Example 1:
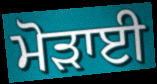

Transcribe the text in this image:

ਮੋੜਾਈ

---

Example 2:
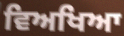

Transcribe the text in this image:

ਵਿਅਖਿਆ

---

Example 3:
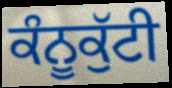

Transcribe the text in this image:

ਕੰਨੂਕੁੱਟੀ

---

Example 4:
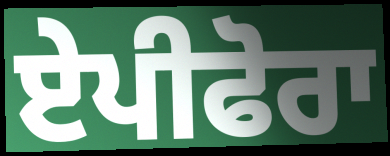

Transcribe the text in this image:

ਏਪੀਫੋਰਾ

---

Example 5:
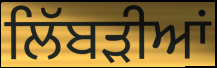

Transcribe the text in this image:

ਲਿੱਬੜੀਆਂ